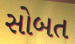
સોબત